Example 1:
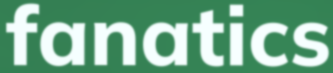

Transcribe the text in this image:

fanatics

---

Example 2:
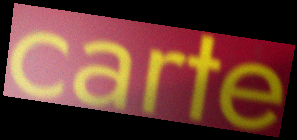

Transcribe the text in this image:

carte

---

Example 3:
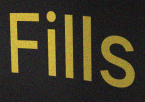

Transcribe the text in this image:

Fills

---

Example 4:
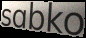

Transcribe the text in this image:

sabko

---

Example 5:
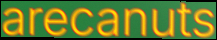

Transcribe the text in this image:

arecanuts